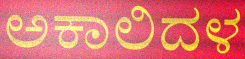
ಅಕಾಲಿದಳ